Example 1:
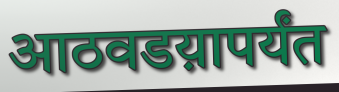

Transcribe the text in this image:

आठवडय़ापर्यंत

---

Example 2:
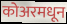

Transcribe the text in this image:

कोअरमधून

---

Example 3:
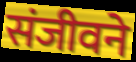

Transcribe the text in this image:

संजीवने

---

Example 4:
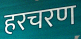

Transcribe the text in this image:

हरचरण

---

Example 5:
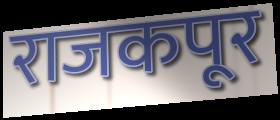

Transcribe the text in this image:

राजकपूर